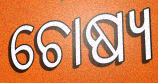
ଚୋଷ୍ୟ